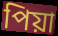
পিয়া